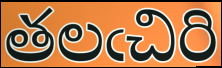
తలఁచిరి